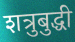
शत्रुबुद्धी